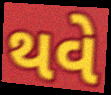
થવે